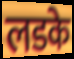
लडके